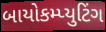
બાયોકમ્પ્યુટિંગ